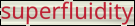
superfluidity